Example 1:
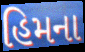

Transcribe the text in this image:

હિમના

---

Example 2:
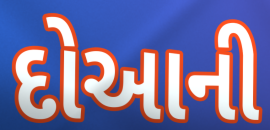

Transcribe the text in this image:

દોઆની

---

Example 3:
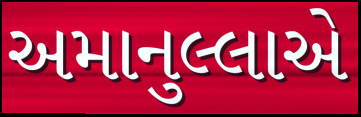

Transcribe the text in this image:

અમાનુલ્લાએ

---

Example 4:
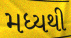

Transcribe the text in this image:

મધ્યથી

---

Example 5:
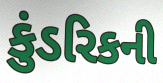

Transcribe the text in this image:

કુંડરિકની